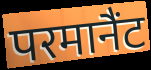
परमानैंट